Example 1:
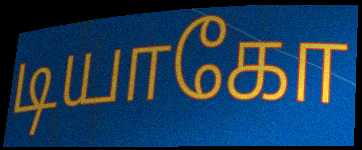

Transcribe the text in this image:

டியாகோ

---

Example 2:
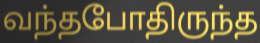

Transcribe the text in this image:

வந்தபோதிருந்த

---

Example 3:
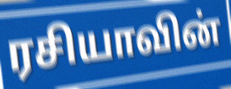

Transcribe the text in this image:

ரசியாவின்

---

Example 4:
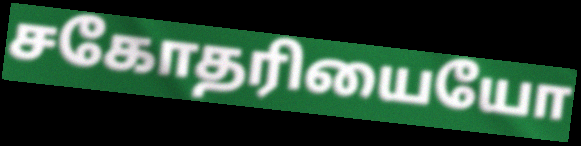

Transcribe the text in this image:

சகோதரியையோ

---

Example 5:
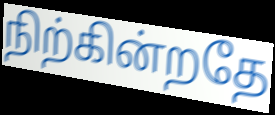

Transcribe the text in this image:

நிற்கின்றதே